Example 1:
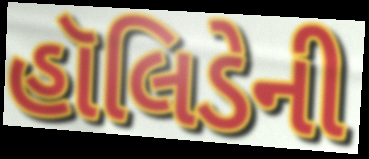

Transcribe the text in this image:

હૉલિડેની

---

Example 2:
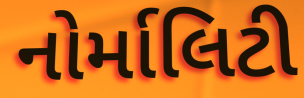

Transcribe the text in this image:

નોર્માલિટી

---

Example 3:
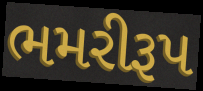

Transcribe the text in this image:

ભમરીરૂપ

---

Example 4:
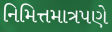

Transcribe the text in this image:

નિમિત્તમાત્રપણે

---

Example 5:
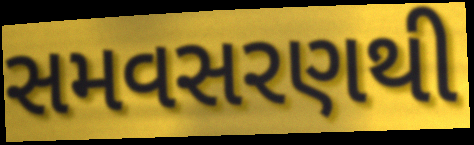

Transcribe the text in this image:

સમવસરણથી